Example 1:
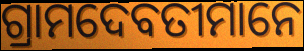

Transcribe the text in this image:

ଗ୍ରାମଦେବତୀମାନେ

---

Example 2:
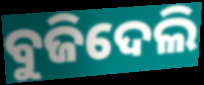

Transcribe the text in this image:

ବୁଜିଦେଲି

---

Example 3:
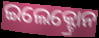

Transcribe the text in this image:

ଇଲେକ୍ଟ୍ରୋନ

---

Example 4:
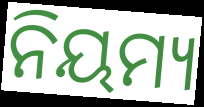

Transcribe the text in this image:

ନିୟମ୍ୟ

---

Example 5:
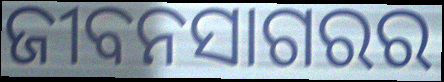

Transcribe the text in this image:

ଜୀବନସାଗରର